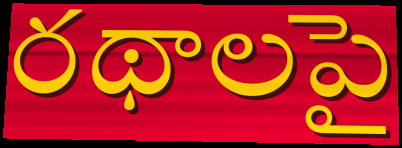
రథాలపై